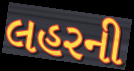
લહરની